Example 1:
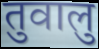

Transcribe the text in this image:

तुवालु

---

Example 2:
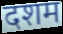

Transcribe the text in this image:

दशम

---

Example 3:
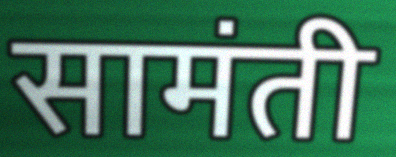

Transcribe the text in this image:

सामंती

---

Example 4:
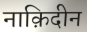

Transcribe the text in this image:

नाक़िदीन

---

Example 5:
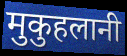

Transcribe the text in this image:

मुकुहलानी